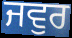
ਜਵੁਰ